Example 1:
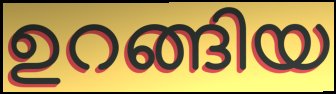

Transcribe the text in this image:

ഉറങ്ങിയ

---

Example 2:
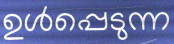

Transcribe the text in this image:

ഉൾപ്പെടുന്ന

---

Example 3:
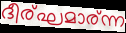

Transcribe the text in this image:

ദീര്ഘമാര്ന്ന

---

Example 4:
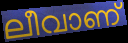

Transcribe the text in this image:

ലീവാണ്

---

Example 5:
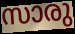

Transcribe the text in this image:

സാരു